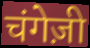
चंगेज़ी